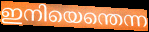
ഇനിയെന്തെന്ന